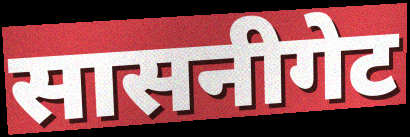
सासनीगेट